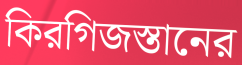
কিরগিজস্তানের